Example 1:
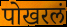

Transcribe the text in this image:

पोखरलं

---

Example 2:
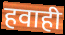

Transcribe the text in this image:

हवाही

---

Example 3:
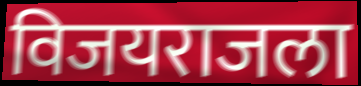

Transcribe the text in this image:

विजयराजला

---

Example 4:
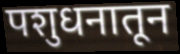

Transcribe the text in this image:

पशुधनातून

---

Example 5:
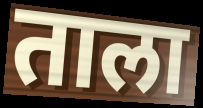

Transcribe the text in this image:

ताला